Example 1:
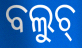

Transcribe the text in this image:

ବଲୁଚ୍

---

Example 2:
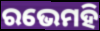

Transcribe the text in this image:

ରଭେମହି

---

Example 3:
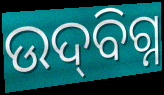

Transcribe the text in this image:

ଉଦ୍‌ବିଗ୍ନ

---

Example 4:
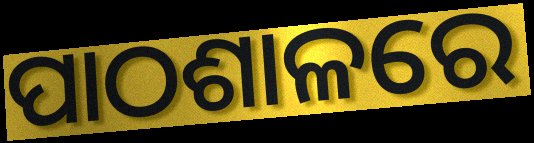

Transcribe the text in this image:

ପାଠଶାଳରେ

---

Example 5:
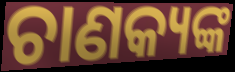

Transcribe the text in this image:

ଚାଣକ୍ୟଙ୍କ